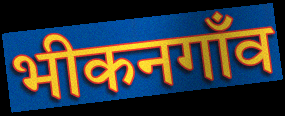
भीकनगाँव